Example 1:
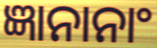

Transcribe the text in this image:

ଜ୍ଞାନାନାଂ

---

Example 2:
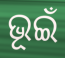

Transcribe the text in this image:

ଭୂଇଁ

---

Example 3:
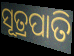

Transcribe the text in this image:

ସୂତ୍ରପାତି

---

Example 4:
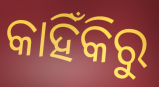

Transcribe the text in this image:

କାହିଁକିରୁ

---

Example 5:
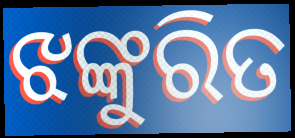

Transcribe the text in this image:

ଝଙ୍କୁରିତ